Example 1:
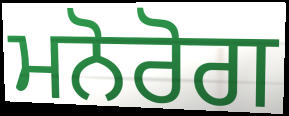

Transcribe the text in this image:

ਮਨੋਰੋਗ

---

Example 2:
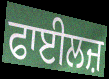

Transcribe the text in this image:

ਫਾਈਲਜ਼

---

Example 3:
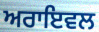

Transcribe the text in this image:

ਅਰਾਇਵਲ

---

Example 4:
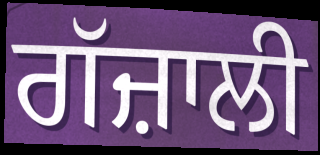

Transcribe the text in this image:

ਗੱਜ਼ਾਲੀ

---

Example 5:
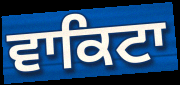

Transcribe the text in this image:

ਵਾਕਿਟਾ